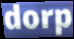
dorp